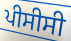
ਪੀਸੀਸੀ